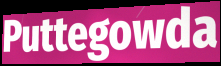
Puttegowda